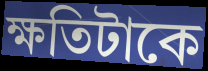
ক্ষতিটাকে